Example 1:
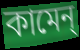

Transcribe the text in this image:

কামেন্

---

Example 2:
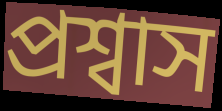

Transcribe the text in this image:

প্রশ্বাস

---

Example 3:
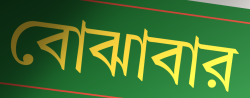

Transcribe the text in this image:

বোঝাবার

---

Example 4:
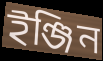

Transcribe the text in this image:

ইঞ্জিন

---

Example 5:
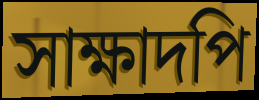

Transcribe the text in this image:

সাক্ষাদপি